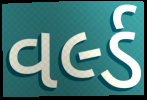
વર્લ્ડ